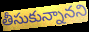
తీసుకున్నానని